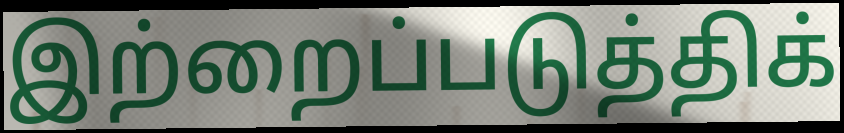
இற்றைப்படுத்திக்